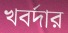
খবর্দার